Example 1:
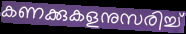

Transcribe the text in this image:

കണക്കുകളനുസരിച്ച്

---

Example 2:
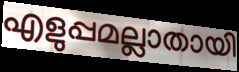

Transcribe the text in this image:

എളുപ്പമല്ലാതായി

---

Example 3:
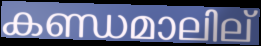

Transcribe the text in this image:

കണ്ഡമാലില്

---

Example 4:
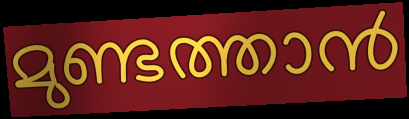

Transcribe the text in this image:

മുണ്ടത്താൻ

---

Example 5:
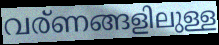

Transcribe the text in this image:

വര്ണങ്ങളിലുള്ള